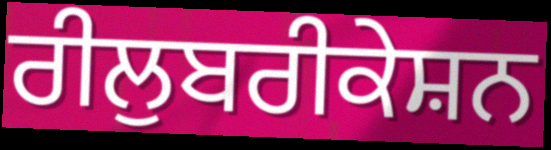
ਰੀਲੁਬਰੀਕੇਸ਼ਨ